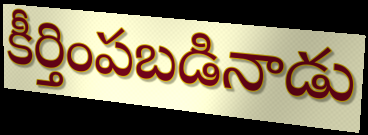
కీర్తింపబడినాడు